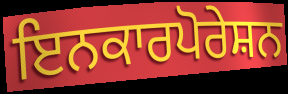
ਇਨਕਾਰਪੋਰੇਸ਼ਨ